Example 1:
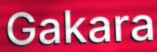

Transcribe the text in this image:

Gakara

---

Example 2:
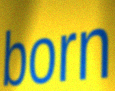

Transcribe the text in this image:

born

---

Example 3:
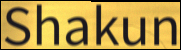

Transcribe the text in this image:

Shakun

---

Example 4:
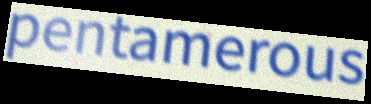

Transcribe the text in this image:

pentamerous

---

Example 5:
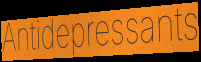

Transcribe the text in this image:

Antidepressants